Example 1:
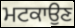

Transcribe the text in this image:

ਮਟਕਾਉਣ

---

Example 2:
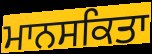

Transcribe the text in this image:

ਮਾਨਸਕਿਤਾ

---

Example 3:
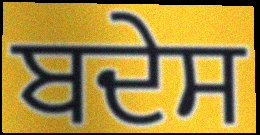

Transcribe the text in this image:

ਬਦੇਸ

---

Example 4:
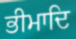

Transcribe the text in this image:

ਭੀਮਾਦਿ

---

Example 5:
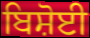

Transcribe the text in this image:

ਬਿਸ਼ੋਈ